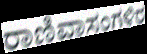
ರಾಣಿವಾಸಂಗಳಿರ